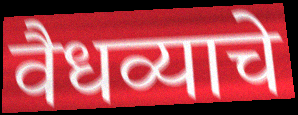
वैधव्याचे